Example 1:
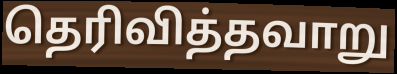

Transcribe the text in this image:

தெரிவித்தவாறு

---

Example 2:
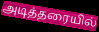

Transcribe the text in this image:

அடித்தரையில்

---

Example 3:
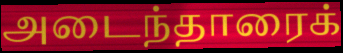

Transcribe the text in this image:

அடைந்தாரைக்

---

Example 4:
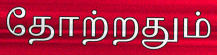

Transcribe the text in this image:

தோற்றதும்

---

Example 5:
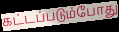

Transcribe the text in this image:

கட்டப்படும்போது